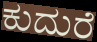
ಕುದುರೆ